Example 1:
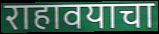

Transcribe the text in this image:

राहावयाचा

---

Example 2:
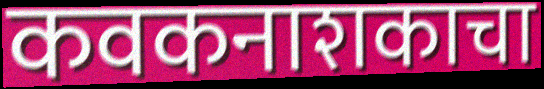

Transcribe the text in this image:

कवकनाशकाचा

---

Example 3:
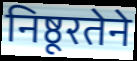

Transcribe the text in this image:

निष्ठूरतेने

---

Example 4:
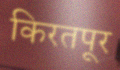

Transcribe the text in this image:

किरतपूर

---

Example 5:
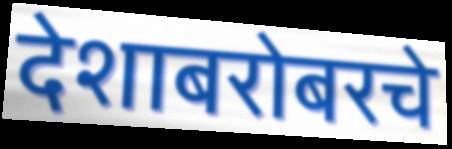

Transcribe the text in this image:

देशाबरोबरचे